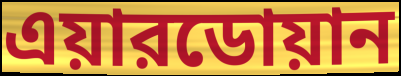
এয়ারডোয়ান